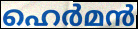
ഹെർമൻ